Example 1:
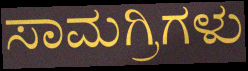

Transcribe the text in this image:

ಸಾಮಗ್ರಿಗಳು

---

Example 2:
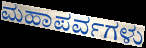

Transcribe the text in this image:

ಮಹಾಪರ್ವಗಳು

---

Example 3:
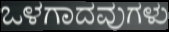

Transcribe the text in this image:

ಒಳಗಾದವುಗಳು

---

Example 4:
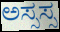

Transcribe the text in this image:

ಅಸ್ಸಸ್ಸ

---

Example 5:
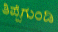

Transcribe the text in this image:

ತಿಪ್ಪೆಗುಂಡಿ